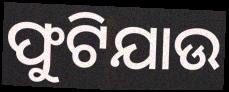
ଫୁଟିଯାଉ